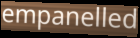
empanelled